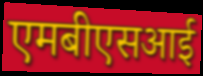
एमबीएसआई